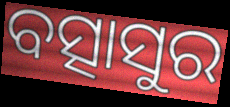
ବତ୍ସାସୁର